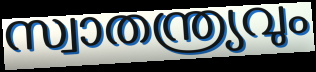
സ്വാതന്ത്ര്യവും